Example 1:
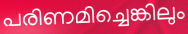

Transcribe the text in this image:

പരിണമിച്ചെങ്കിലും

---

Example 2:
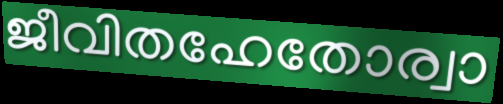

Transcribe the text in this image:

ജീവിതഹേതോര്വാ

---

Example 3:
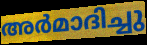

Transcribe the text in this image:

അർമാദിച്ചു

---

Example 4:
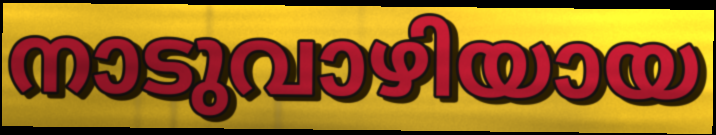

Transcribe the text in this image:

നാടുവാഴിയായ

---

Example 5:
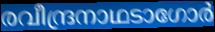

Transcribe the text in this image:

രവീന്ദ്രനാഥടാഗോർ